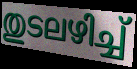
തുടലഴിച്ച്